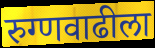
रुग्णवाढीला